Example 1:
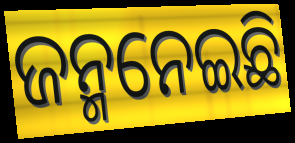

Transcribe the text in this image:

ଜନ୍ମନେଇଛି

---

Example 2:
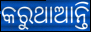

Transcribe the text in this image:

କରୁଥାଆନ୍ତି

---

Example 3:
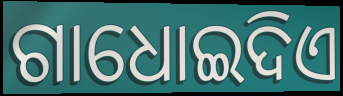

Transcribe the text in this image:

ଗାଧୋଇଦିଏ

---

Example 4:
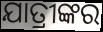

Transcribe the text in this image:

ଯାତ୍ରୀଙ୍କର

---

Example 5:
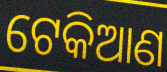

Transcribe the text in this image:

ଟେକିଆଣ